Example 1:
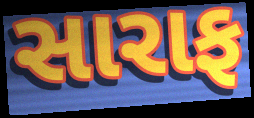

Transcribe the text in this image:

સારાફ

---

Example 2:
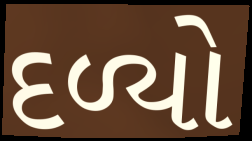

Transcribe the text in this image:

દળ્યો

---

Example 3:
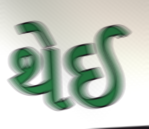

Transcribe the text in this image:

થેઈ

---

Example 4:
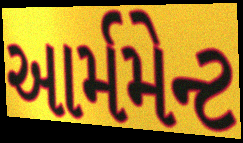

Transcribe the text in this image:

આર્મમેન્ટ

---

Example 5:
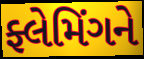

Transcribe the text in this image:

ફ્લેમિંગને